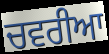
ਚਵਰੀਆ